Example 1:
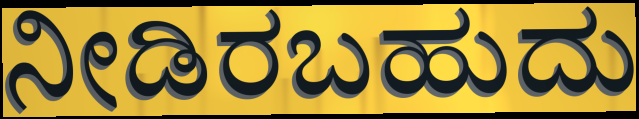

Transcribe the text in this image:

ನೀಡಿರಬಹುದು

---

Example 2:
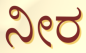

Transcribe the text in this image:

ನೀರ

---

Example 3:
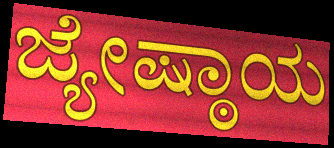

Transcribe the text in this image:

ಜ್ಯೇಷ್ಠಾಯ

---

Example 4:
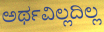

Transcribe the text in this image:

ಅರ್ಥವಿಲ್ಲದಿಲ್ಲ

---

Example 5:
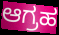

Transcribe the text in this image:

ಆಗ್ರಹ